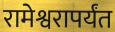
रामेश्वरापर्यंत